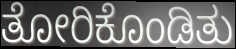
ತೋರಿಕೊಂಡಿತು